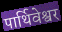
पार्थिवेश्वर